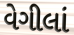
વેગીલાં